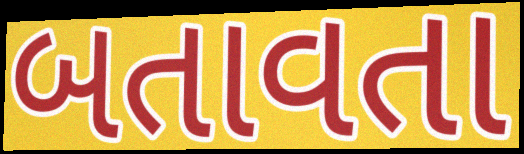
બતાવતા